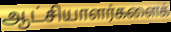
ஆட்சியாளர்களைக்